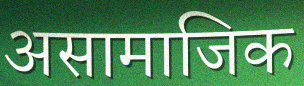
असामाजिक